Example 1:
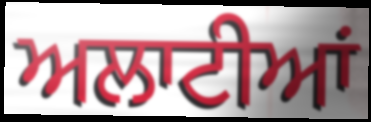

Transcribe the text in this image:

ਅਲਾਟੀਆਂ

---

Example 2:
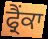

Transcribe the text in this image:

ਫ੍ਰੈਂਕਾ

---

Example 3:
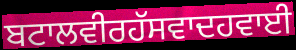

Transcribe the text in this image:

ਬਟਾਲਵੀਰਹੱਸਵਾਦਹਵਾਈ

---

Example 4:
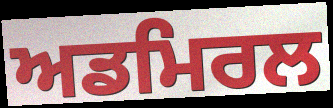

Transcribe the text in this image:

ਅਡਮਿਰਲ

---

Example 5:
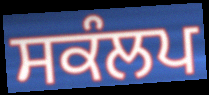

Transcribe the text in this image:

ਸਕੰਲਪ